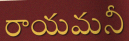
రాయమనీ